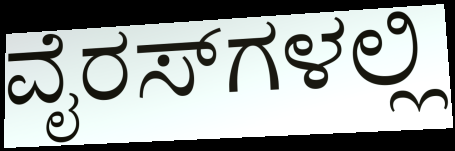
ವೈರಸ್‌ಗಳಲ್ಲಿ